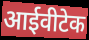
आईवीटेक